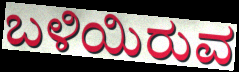
ಬಳಿಯಿರುವ